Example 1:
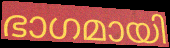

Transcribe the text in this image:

ഭാഗമായി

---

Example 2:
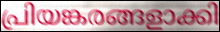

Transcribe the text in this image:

പ്രിയങ്കരങ്ങളാക്കി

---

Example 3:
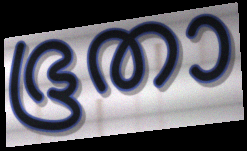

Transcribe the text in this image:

ഭൂതാ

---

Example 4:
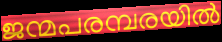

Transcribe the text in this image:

ജന്മപരമ്പരയിൽ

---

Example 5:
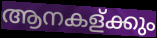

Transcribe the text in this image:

ആനകള്ക്കും